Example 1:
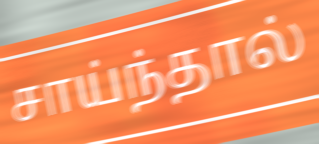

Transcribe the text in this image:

சாய்ந்தால்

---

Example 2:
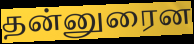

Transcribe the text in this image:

தன்னுரைன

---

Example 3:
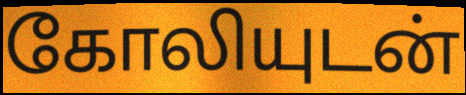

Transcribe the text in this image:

கோலியுடன்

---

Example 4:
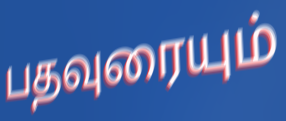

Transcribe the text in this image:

பதவுரையும்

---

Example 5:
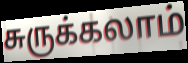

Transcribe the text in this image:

சுருக்கலாம்